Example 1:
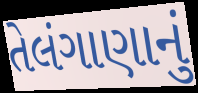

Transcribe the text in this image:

તેલંગાણાનું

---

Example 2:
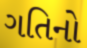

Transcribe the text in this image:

ગતિનો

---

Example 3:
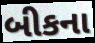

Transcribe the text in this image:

બીકના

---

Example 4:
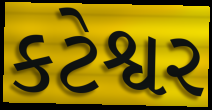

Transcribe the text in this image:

કટેશ્વર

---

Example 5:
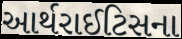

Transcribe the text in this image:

આર્થરાઈટિસના